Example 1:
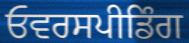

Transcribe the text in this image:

ਓਵਰਸਪੀਡਿੰਗ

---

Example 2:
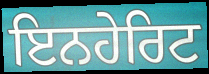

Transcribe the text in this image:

ਇਨਹੇਰਿਟ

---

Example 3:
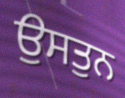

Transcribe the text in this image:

ਉਸਤੁਨ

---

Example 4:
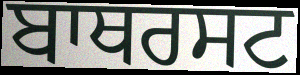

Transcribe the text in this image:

ਬਾਥਰਸਟ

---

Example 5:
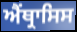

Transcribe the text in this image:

ਐਂਥ੍ਰਾਸਿਸ